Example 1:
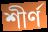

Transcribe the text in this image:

শীৰ্ণ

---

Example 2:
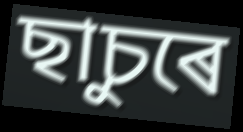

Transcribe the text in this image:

ছাচুৰে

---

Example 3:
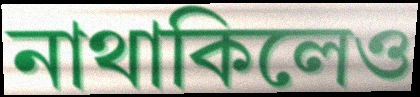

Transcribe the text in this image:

নাথাকিলেও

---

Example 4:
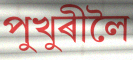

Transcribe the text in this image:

পুখুৰীলৈ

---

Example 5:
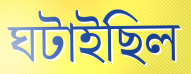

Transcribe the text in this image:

ঘটাইছিল